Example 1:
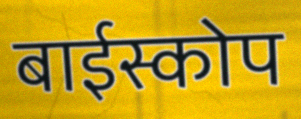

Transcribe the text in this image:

बाईस्कोप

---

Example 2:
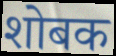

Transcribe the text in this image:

शोबक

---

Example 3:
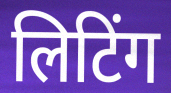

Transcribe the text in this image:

लिटिंग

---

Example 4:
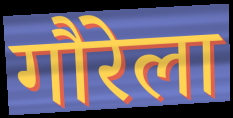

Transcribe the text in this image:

गौरेला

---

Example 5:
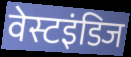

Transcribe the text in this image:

वेस्टइंडिज